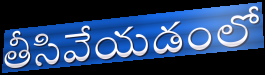
తీసివేయడంలో